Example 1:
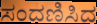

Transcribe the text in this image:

ಸಂದಣಿಸಿದ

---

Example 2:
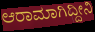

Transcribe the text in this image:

ಆರಾಮಾಗಿದ್ದೀನಿ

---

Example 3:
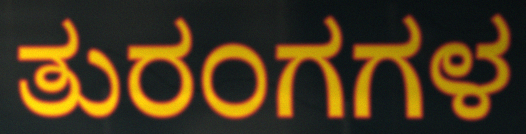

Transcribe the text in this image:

ತುರಂಗಗಳ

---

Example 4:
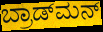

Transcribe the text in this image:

ಬ್ರಾಡ್‌ಮನ್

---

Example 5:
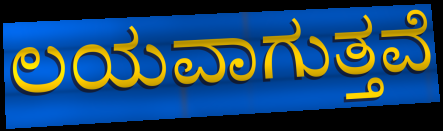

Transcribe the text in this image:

ಲಯವಾಗುತ್ತವೆ